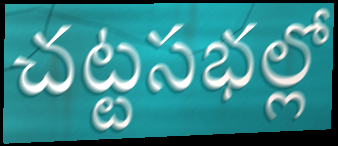
చట్టసభల్లో